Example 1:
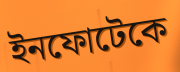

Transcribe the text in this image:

ইনফোটেকে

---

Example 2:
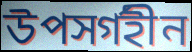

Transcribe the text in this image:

উপসর্গহীন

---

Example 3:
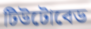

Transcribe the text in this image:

টিউটোবেড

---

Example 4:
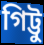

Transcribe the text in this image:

গিট্টু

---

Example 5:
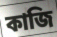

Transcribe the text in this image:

কাজি